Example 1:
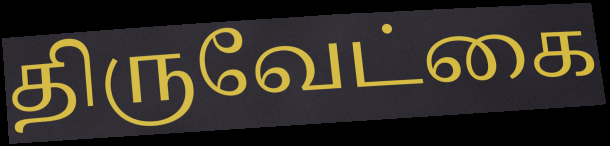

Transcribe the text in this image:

திருவேட்கை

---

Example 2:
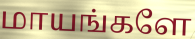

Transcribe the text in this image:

மாயங்களே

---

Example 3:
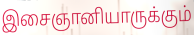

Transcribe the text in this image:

இசைஞானியாருக்கும்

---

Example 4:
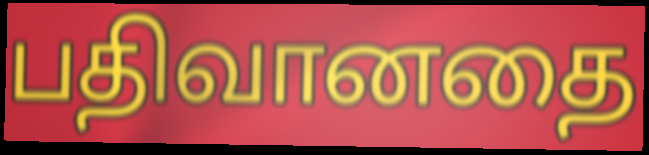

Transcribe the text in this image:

பதிவானதை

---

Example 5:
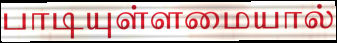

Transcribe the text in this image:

பாடியுள்ளமையால்